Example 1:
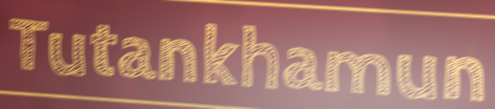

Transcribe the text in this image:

Tutankhamun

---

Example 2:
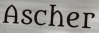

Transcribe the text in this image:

Ascher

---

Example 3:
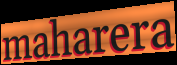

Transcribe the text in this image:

maharera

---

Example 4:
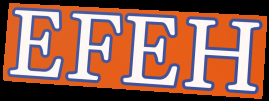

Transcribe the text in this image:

EFEH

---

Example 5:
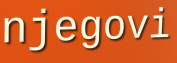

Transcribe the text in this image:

njegovi